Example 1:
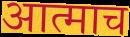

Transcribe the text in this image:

आत्माच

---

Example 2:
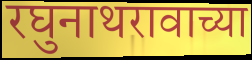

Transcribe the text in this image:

रघुनाथरावाच्या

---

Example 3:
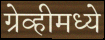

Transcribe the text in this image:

ग्रेव्हीमध्ये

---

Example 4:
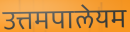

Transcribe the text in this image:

उत्तमपालेयम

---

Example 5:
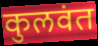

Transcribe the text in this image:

कुलवंत